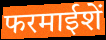
फरमाईशें